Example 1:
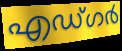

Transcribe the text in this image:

എഡ്ഗർ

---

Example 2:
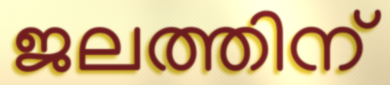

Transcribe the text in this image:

ജലത്തിന്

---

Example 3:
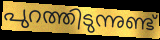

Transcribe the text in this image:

പുറത്തിടുന്നുണ്ട്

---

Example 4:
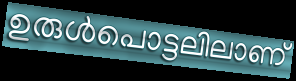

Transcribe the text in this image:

ഉരുൾപൊട്ടലിലാണ്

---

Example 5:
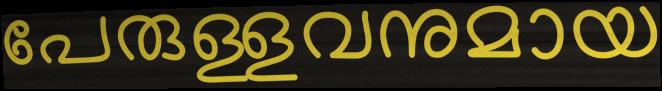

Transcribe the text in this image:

പേരുള്ളവനുമായ